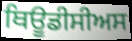
ਥਿਊਡੀਸੀਅਸ